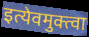
इत्येवमुक्त्वा